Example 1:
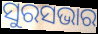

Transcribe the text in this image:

ସୁରସଭାର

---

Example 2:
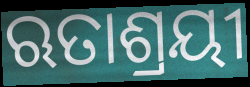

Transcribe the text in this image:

ଋତାଶ୍ରୟୀ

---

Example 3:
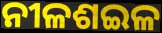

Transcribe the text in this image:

ନୀଳଶଇଳ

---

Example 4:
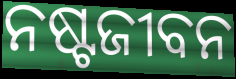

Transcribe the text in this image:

ନଷ୍ଟଜୀବନ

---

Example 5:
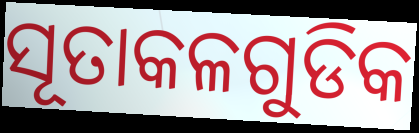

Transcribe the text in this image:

ସୂତାକଳଗୁଡିକ